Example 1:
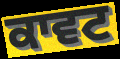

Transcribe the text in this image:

ਕਾਵਟ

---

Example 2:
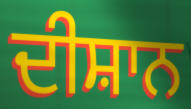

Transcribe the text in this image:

ਦੀਸ਼ਾਨ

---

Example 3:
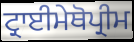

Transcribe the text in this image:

ਟ੍ਰਾਈਮੇਥੋਪ੍ਰੀਮ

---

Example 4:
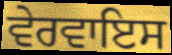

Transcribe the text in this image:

ਵੇਰਵਾਇਸ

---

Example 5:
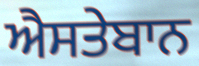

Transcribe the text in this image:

ਐਸਤੇਬਾਨ